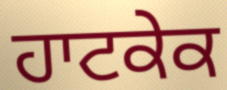
ਹਾਟਕੇਕ